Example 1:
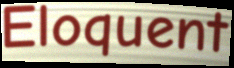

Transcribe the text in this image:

Eloquent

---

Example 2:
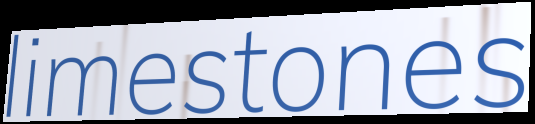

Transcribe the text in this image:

limestones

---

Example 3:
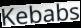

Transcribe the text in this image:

Kebabs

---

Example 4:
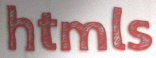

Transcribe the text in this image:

htmls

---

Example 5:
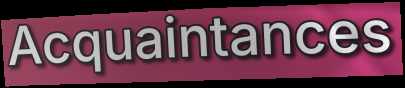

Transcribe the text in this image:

Acquaintances